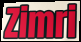
Zimri